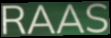
RAAS